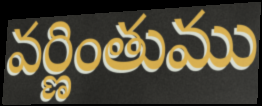
వర్ణింతుము